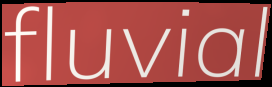
fluvial